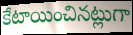
కేటాయించినట్లుగా